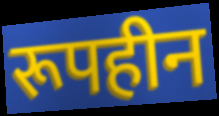
रूपहीन